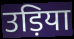
उड़िया